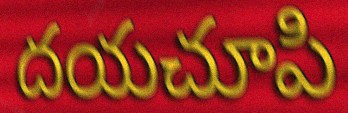
దయచూపి